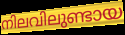
നിലവിലുണ്ടായ